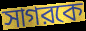
সাগরকে